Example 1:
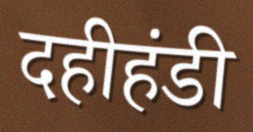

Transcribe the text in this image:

दहीहंडी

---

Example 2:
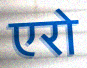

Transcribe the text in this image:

एरो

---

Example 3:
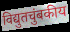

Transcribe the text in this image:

विद्युतचुंबकीय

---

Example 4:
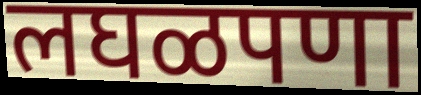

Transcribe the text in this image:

लघळपणा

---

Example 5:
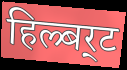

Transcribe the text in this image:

हिल्बर्ट